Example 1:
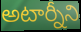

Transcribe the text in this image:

అటార్నీని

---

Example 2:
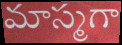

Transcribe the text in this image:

మాస్మగా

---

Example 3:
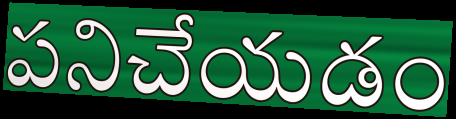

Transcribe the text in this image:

పనిచేయడం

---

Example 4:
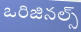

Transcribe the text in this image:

ఒరిజినల్స్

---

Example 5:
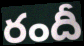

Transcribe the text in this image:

రందీ